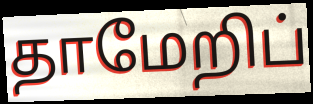
தாமேறிப்